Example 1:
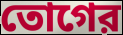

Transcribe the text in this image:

তোগের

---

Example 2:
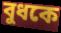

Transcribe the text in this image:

বুধকে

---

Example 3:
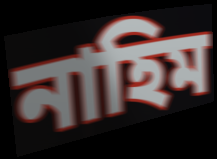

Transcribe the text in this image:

নাহিম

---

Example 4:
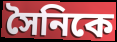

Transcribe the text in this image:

সৈনিকে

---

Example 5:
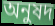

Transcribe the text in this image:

অনুষদ